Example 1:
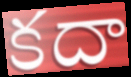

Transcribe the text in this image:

కదా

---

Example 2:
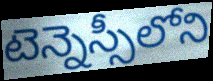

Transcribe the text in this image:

టెన్నెస్సీలోని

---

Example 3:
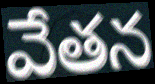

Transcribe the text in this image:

వేతన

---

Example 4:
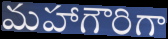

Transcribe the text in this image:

మహాగౌరిగా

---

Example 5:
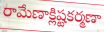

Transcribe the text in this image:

రామేణాక్లిష్టకర్మణా